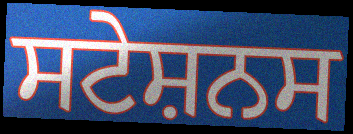
ਸਟੇਸ਼ਨਸ